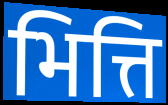
भित्ति